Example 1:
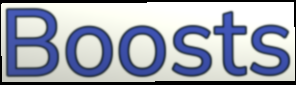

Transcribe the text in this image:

Boosts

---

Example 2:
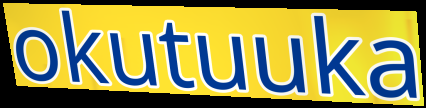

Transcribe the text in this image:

okutuuka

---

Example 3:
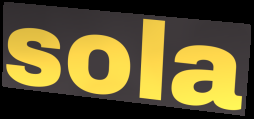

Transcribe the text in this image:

sola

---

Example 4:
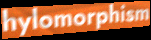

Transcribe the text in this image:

hylomorphism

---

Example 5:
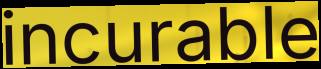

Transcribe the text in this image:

incurable